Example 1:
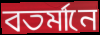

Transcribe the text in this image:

বতর্মানে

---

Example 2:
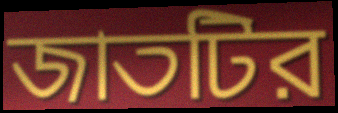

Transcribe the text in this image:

জাতটির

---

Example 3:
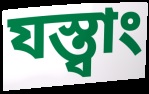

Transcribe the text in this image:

যস্ত্বাং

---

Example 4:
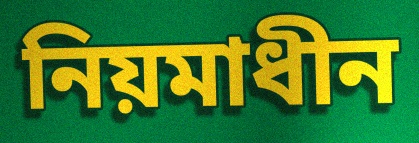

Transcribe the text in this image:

নিয়মাধীন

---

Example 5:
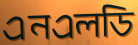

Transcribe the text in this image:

এনএলডি